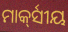
ମାର୍କ୍‍ସୀୟ